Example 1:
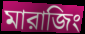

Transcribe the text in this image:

মারাজিং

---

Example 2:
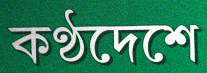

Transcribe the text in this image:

কণ্ঠদেশে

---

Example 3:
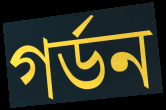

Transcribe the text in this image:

গর্ডন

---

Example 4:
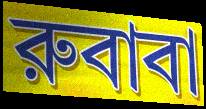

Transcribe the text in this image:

রুবাবা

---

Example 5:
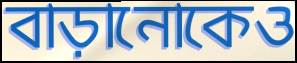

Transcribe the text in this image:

বাড়ানোকেও